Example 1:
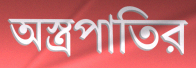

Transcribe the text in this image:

অস্ত্রপাতির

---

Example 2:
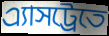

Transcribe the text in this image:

এ্যাসট্রেতে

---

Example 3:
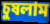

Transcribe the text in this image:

চুষলাম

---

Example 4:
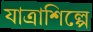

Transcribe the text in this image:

যাত্রাশিল্পে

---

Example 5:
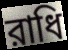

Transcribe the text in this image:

রাধি